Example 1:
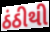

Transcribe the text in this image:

ઠંઠીથી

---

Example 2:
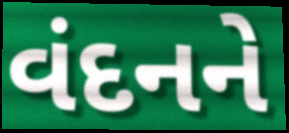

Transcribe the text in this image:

વંદનને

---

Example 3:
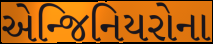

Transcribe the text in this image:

એન્જિનિયરોના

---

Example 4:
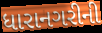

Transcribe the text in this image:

ધારાનગરીની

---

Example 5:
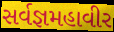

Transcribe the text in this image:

સર્વજ્ઞમહાવીર